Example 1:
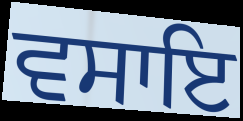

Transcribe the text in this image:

ਵਸਾਇ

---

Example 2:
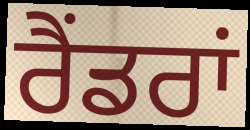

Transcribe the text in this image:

ਰੈਂਡਰਾਂ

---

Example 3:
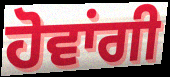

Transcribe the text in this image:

ਹੋਵਾਂਗੀ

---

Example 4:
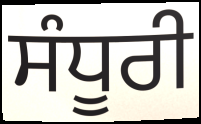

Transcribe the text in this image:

ਸੰਧੂਰੀ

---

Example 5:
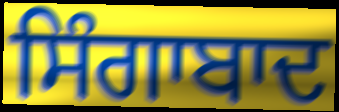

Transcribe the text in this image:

ਸਿੰਗਾਬਾਦ